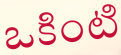
ఒకింటి